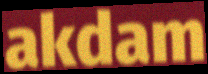
akdam